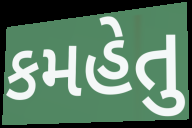
કમહેતુ